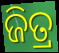
ଜିତ୍ର